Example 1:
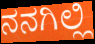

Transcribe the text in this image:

ನನಗಿಲ್ಲಿ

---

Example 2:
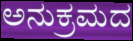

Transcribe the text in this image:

ಅನುಕ್ರಮದ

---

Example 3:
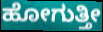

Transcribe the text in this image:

ಹೋಗುತ್ತೀ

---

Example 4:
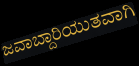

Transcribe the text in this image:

ಜವಾಬ್ದಾರಿಯುತವಾಗಿ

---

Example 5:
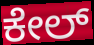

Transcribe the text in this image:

ಕೇಲ್